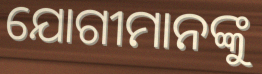
ଯୋଗୀମାନଙ୍କୁ